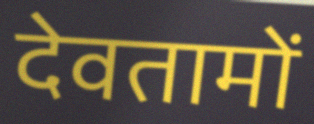
देवतामों